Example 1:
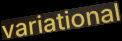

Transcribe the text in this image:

variational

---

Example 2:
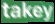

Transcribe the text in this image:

takey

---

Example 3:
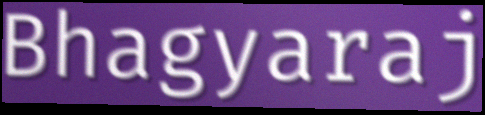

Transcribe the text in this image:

Bhagyaraj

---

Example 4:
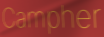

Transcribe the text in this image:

Campher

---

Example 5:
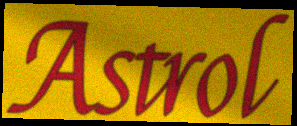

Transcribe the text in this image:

Astrol